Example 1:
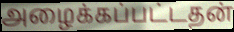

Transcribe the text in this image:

அழைக்கப்பட்டதன்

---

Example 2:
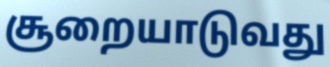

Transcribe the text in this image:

சூறையாடுவது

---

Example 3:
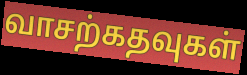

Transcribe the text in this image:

வாசற்கதவுகள்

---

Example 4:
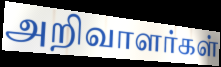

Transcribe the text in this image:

அறிவாளர்கள்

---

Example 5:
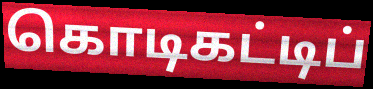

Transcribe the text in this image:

கொடிகட்டிப்